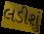
લડીશું